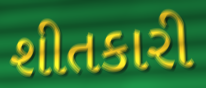
શીતકારી